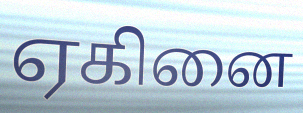
ஏகினை